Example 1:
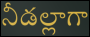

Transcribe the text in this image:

నీడల్లాగా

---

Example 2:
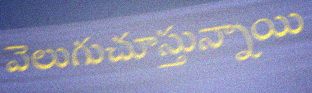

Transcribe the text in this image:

వెలుగుచూస్తున్నాయి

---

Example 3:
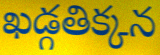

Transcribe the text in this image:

ఖడ్గతిక్కన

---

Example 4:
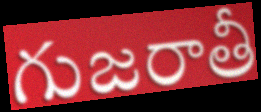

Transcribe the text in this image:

గుజరాతీ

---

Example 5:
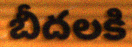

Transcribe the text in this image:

బీదలకి